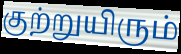
குற்றுயிரும்